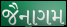
જૈનાગમ